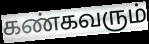
கண்கவரும்